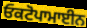
ਓਕਟੋਪਾਮਾਈਨ